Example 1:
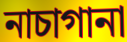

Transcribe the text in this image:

নাচাগানা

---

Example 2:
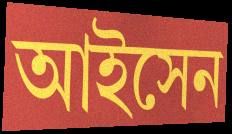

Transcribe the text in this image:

আইসেন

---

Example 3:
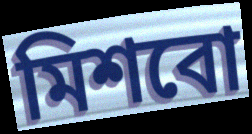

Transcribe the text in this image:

মিশবো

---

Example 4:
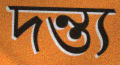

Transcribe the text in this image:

দন্ত্য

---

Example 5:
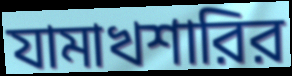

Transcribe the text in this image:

যামাখশারির